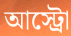
আস্ট্রো